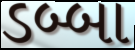
ડબ્બા